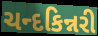
ચન્દકિન્નરી